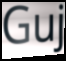
Guj